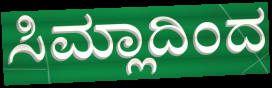
ಸಿಮ್ಲಾದಿಂದ